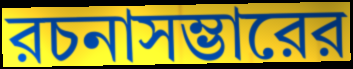
রচনাসম্ভারের